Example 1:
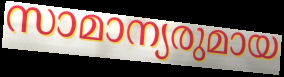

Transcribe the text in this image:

സാമാന്യരുമായ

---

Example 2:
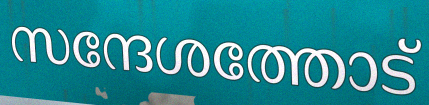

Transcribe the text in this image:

സന്ദേശത്തോട്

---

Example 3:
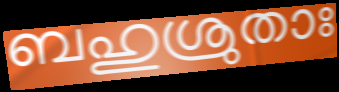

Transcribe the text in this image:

ബഹുശ്രുതാഃ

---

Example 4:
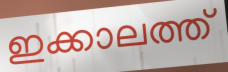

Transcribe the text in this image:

ഇക്കാലത്ത്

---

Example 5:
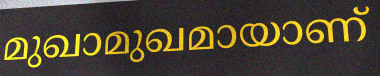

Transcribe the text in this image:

മുഖാമുഖമായാണ്